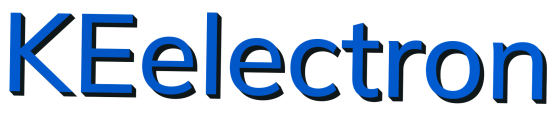
KEelectron